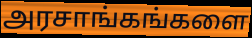
அரசாங்கங்களை